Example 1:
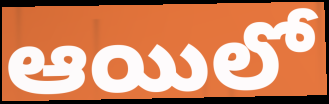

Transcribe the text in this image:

ఆయిలో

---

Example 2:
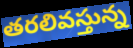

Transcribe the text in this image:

తరలివస్తున్న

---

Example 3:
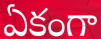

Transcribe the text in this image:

ఏకంగా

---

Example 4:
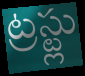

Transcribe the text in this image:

ట్రస్ట్లు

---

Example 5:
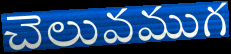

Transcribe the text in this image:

చెలువముగ